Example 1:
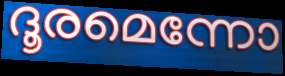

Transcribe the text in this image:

ദൂരമെന്നോ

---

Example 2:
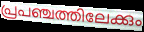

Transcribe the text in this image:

പ്രപഞ്ചത്തിലേക്കും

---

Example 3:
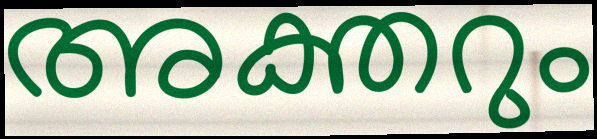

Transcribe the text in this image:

അക്തറും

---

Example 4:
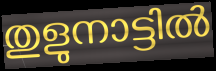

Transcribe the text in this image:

തുളുനാട്ടിൽ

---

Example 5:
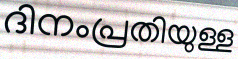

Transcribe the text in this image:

ദിനംപ്രതിയുള്ള